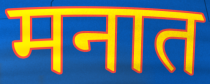
मनात